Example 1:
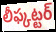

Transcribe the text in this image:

లీఫ్కట్టర్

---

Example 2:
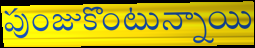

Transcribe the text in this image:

పుంజుకొంటున్నాయి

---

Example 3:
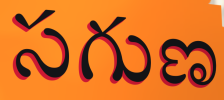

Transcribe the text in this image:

సగుణ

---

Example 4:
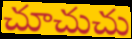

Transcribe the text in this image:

చూచుచు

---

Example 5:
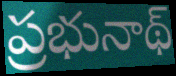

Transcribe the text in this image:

ప్రభునాథ్